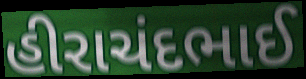
હીરાચંદભાઈ